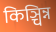
किञ्चिन्न